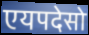
एयपदेसो